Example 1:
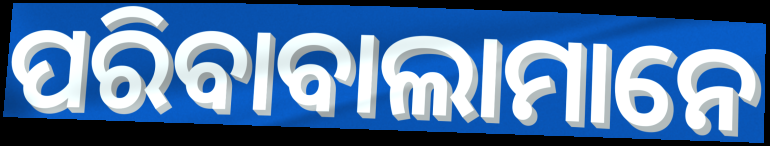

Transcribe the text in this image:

ପରିବାବାଲାମାନେ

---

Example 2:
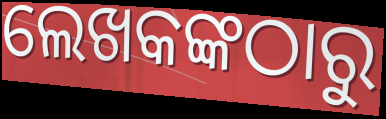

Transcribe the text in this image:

ଲେଖକଙ୍କଠାରୁ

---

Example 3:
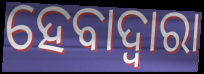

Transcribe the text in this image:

ହେବାଦ୍ୱାରା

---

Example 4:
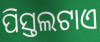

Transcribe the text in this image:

ପିସ୍ତଲଟାଏ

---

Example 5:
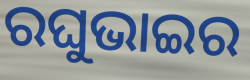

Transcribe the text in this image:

ରଘୁଭାଇର